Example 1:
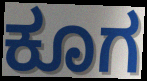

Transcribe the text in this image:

ಕೂಗ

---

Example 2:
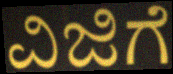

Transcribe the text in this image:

ವಿಜಿಗೆ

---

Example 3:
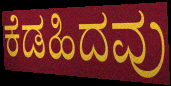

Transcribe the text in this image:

ಕೆಡಹಿದವು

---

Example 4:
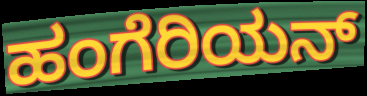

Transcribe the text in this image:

ಹಂಗೆರಿಯನ್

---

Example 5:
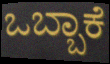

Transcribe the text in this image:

ಒಬ್ಬಾಕೆ